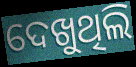
ଦେଖୁଥିଲି